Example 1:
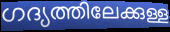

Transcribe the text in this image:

ഗദ്യത്തിലേക്കുള്ള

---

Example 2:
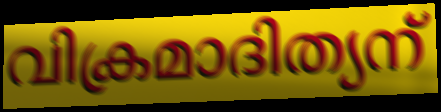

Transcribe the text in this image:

വിക്രമാദിത്യന്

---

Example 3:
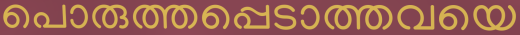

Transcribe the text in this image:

പൊരുത്തപ്പെടാത്തവയെ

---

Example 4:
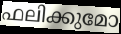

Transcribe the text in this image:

ഫലിക്കുമോ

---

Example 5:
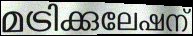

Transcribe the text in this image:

മട്രിക്കുലേഷന്